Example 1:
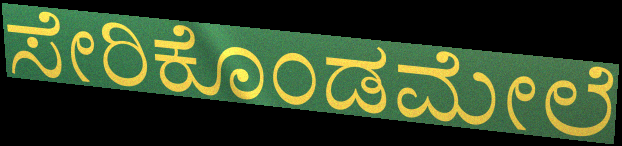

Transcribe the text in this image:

ಸೇರಿಕೊಂಡಮೇಲೆ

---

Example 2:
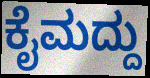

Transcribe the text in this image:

ಕೈಮದ್ದು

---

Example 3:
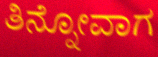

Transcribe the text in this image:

ತಿನ್ನೋವಾಗ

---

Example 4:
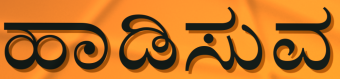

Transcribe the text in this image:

ಹಾಡಿಸುವ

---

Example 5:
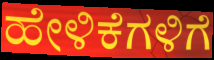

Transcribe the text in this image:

ಹೇಳಿಕೆಗಳಿಗೆ